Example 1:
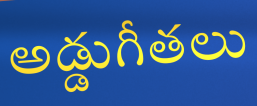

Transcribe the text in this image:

అడ్డుగీతలు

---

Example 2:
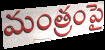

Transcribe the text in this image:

మంత్రంపై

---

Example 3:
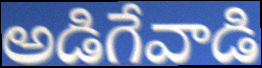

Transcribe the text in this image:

అడిగేవాడి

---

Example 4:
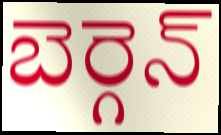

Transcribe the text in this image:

బెర్గెన్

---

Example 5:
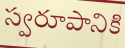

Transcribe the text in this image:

స్వరూపానికి